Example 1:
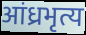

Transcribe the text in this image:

आंध्रभृत्य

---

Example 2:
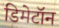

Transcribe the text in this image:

डिमेटॉन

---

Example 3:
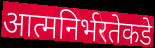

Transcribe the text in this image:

आत्मनिर्भरतेकडे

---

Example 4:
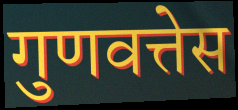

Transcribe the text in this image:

गुणवत्तेस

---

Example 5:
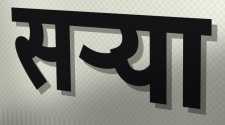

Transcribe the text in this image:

सऱ्या